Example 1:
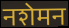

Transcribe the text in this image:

नशेमन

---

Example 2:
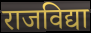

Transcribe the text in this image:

राजविद्या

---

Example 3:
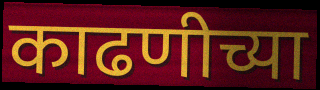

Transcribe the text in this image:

काढणीच्या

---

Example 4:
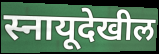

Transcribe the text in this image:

स्नायूदेखील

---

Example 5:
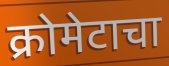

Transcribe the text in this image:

क्रोमेटाचा